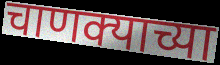
चाणक्याच्या